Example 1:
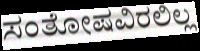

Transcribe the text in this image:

ಸಂತೋಷವಿರಲಿಲ್ಲ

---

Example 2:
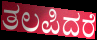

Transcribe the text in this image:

ತಲಪಿದರೆ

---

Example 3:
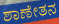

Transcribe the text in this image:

ಶಾಣೇತನ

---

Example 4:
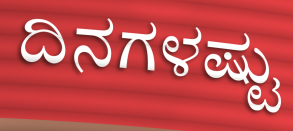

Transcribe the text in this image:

ದಿನಗಳಷ್ಟು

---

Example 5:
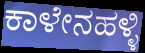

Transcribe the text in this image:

ಕಾಳೇನಹಳ್ಳಿ